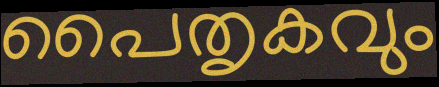
പൈതൃകവും